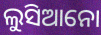
ଲୁସିଆନୋ